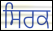
ਸਿਰਕ